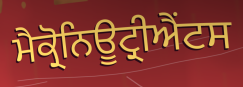
ਮੈਕ੍ਰੋਨਿਊਟ੍ਰੀਐਂਟਸ